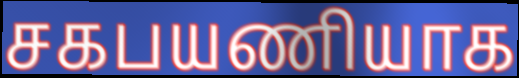
சகபயணியாக